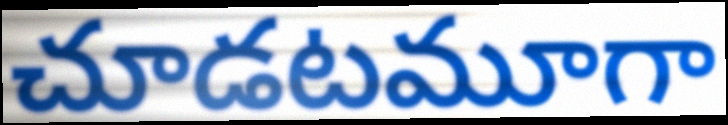
చూడటమూగా